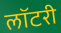
लॉटरी